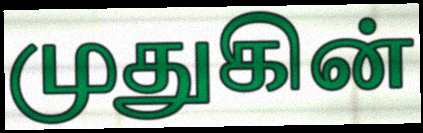
முதுகின்